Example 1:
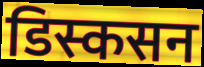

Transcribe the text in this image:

डिस्कसन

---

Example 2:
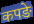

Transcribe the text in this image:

कपङे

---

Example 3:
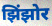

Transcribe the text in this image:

झिंझोर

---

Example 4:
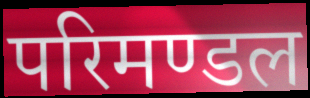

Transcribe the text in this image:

परिमण्डल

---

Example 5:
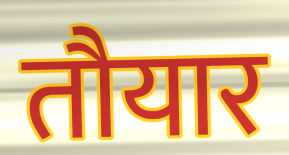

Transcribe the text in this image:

तौयार